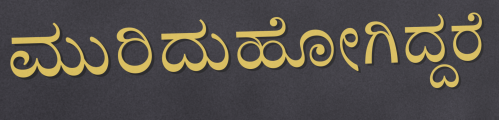
ಮುರಿದುಹೋಗಿದ್ದರೆ